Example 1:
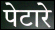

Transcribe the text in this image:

पेटारे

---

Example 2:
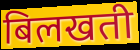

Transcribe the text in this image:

बिलखती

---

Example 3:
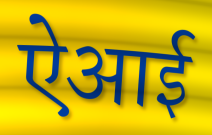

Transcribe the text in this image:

ऐआई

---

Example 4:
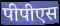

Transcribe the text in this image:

पीपीएस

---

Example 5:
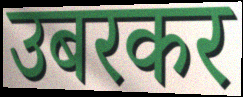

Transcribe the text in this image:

उबरकर